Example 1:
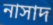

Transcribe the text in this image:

নাসাদ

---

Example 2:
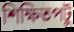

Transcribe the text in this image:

শিক্ষিতপটু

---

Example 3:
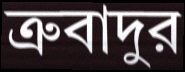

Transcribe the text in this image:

ত্রুবাদুর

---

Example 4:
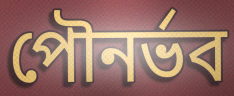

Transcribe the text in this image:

পৌনর্ভব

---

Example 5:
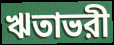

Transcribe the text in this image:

ঋতাভরী